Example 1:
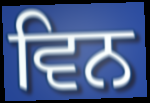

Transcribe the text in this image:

ਵਿਨ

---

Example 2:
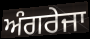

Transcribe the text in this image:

ਅੰਗਰੇਜਾ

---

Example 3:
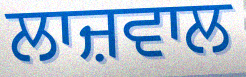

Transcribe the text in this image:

ਲਾਜ਼ਵਾਲ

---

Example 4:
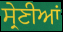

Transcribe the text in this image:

ਸ੍ਰੇਣੀਆਂ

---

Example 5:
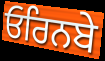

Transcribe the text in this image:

ਓਰਿਨਬੇ